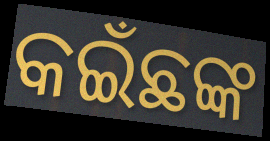
କଇଁଛଙ୍କ